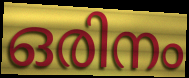
ഒരിനം